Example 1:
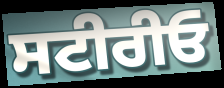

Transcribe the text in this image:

ਸਟੀਰੀਓ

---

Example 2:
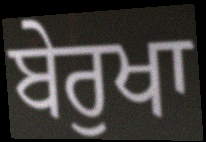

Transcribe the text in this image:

ਬੇਰੁਖਾ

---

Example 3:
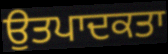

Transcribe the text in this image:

ਉਤਪਾਦਕਤਾ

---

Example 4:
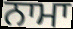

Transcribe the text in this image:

ਨਾਮਾ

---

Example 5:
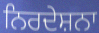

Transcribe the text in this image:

ਨਿਰਦੇਸ਼ਨਾ